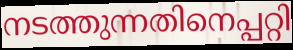
നടത്തുന്നതിനെപ്പറ്റി